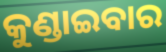
କୁଣ୍ଡାଇବାର